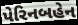
પેરિનબહેન